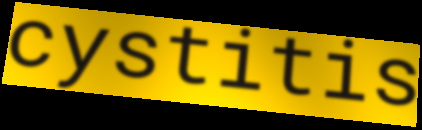
cystitis